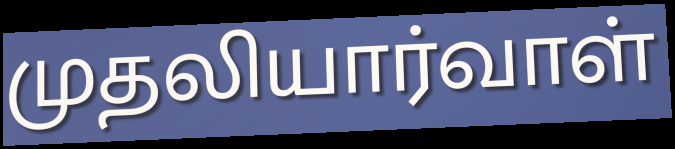
முதலியார்வாள்